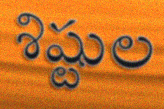
శిష్టుల